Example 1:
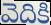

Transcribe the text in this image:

వెదికి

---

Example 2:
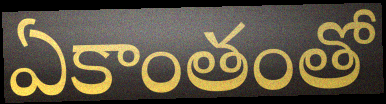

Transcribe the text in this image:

ఏకాంతంతో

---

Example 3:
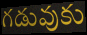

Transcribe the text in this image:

గడువుకు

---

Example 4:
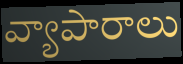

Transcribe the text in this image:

వ్యాపారాలు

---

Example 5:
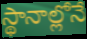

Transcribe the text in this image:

స్థానాల్లోనే